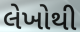
લેખોથી